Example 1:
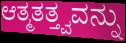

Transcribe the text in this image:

ಆತ್ಮತತ್ತ್ವವನ್ನು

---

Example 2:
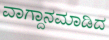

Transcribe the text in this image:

ವಾಗ್ದಾನಮಾಡಿದ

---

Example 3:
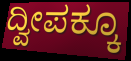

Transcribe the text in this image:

ದ್ವೀಪಕ್ಕೂ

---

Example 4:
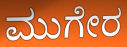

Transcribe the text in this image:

ಮುಗೇರ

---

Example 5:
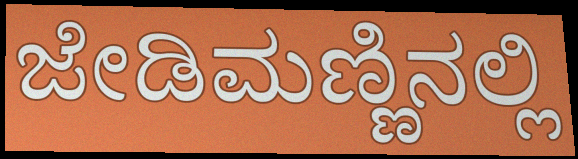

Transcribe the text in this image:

ಜೇಡಿಮಣ್ಣಿನಲ್ಲಿ